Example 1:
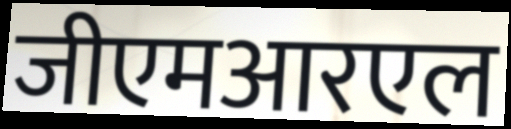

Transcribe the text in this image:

जीएमआरएल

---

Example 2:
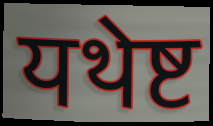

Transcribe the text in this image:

यथेष्ट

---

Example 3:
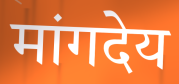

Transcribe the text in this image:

मांगदेय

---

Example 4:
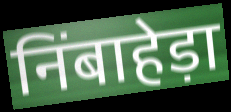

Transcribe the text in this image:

निंबाहेड़ा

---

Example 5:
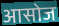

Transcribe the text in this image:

आसोज